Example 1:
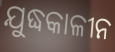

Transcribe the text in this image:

ଯୁଦ୍ଧକାଳୀନ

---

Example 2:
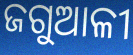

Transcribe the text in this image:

ଜଗୁଆଳୀ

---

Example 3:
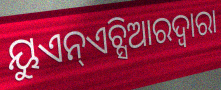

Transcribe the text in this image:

ୟୁଏନ୍ଏଚ୍ସିଆରଦ୍ୱାରା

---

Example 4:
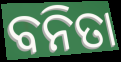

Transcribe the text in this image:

ବନିତା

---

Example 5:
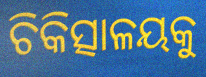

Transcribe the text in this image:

ଚିକିତ୍ସାଳୟକୁ